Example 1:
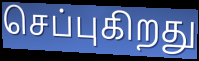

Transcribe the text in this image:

செப்புகிறது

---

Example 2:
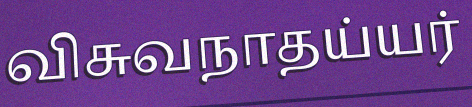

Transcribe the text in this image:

விசுவநாதய்யர்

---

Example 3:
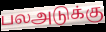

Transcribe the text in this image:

பலஅடுக்கு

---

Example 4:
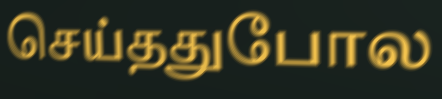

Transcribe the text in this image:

செய்ததுபோல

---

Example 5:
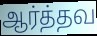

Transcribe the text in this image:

ஆர்த்தவ